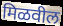
मिळवील